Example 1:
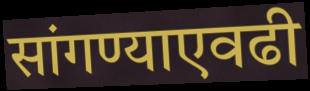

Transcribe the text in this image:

सांगण्याएवढी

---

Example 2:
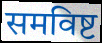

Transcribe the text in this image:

समविष्ट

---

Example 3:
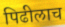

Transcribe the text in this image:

पिढीलाच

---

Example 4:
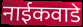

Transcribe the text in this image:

नाईकवाडे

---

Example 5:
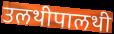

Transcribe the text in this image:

उलथीपालथी